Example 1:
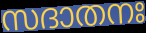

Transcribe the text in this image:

സദാതനഃ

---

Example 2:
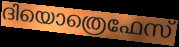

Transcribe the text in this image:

ദിയൊത്രെഫേസ്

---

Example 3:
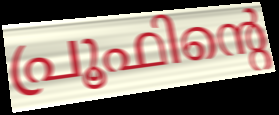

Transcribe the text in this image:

പ്രൂഫിന്റെ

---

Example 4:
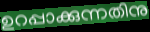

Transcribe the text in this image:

ഉറപ്പാക്കുന്നതിനു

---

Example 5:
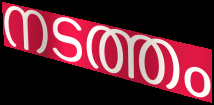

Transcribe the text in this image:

നടത്തം